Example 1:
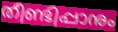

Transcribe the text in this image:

തീണ്ടിപ്പാനും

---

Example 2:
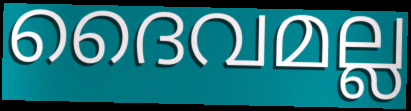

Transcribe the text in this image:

ദൈവമല്ല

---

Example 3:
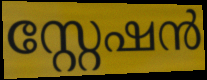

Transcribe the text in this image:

സ്റ്റേഷൻ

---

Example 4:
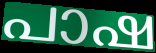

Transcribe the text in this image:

പാഷ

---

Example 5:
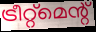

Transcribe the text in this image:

ട്രീറ്റ്മെന്റ്